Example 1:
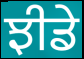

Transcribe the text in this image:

ਝੀਡੇ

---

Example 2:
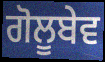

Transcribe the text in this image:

ਗੋਲੂਬੇਵ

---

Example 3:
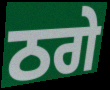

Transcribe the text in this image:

ਠਗੇ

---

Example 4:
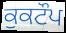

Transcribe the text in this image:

ਕੁਕਟੌਪ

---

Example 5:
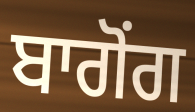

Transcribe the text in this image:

ਬਾਗੋਂਗ